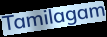
Tamilagam